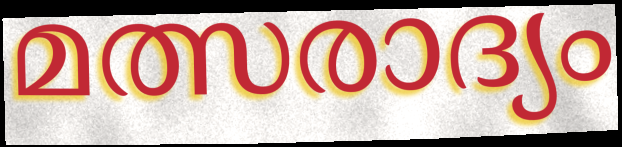
മത്സരാദ്യം